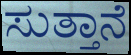
ಸುತ್ತಾನೆ